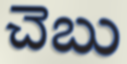
చెబు